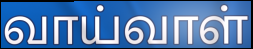
வாய்வாள்